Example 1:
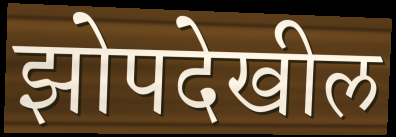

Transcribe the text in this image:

झोपदेखील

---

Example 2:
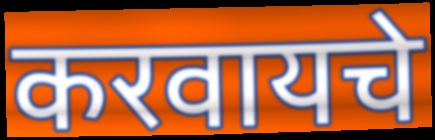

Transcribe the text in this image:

करवायचे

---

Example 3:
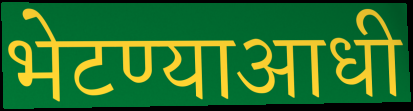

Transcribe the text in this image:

भेटण्याआधी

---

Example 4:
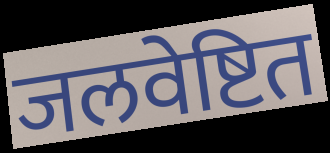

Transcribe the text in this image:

जलवेष्टित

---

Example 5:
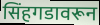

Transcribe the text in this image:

सिंहगडावरून